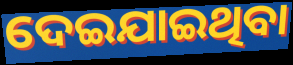
ଦେଇଯାଇଥିବା